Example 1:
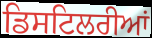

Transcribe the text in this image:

ਡਿਸਟਿਲਰੀਆਂ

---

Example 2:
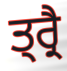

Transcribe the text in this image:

ਤ੍ਰ੍ਰੈ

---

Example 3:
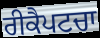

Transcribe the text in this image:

ਰੀਕੈਪਟਚਾ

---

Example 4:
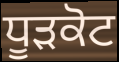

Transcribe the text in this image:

ਧੂੜਕੋਟ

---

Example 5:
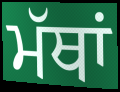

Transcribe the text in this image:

ਮੱਥਾਂ